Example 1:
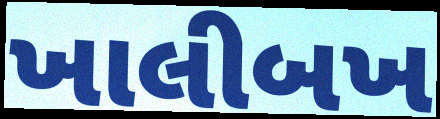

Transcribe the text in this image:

ખાલીબખ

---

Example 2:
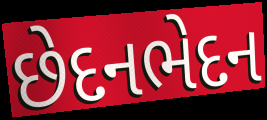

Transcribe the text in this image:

છેદનભેદન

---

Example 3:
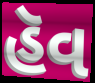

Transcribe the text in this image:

હૅવ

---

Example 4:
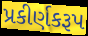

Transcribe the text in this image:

પ્રકીર્ણકરૂપ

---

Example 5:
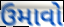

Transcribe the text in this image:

ઉમાવો